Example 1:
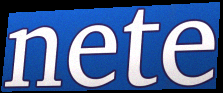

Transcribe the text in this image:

nete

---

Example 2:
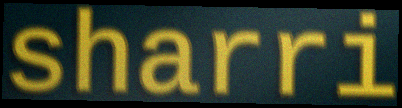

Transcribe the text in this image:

sharri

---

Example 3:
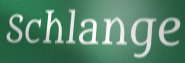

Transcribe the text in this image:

Schlange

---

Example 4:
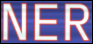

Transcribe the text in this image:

NER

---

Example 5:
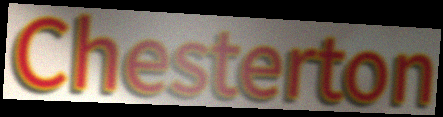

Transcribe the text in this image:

Chesterton